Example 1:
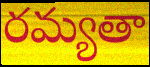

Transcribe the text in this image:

రమ్యతా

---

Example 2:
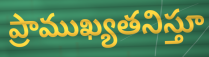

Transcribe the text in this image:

ప్రాముఖ్యతనిస్తూ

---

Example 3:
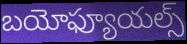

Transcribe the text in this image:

బయోఫ్యూయల్స్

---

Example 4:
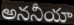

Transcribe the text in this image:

అననీయా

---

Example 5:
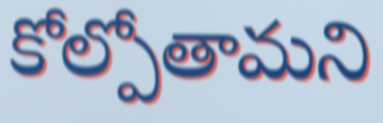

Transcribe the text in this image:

కోల్పోతామని